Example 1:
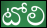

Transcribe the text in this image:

టోలి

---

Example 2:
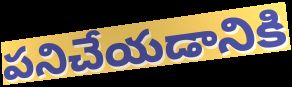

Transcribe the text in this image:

పనిచేయడానికి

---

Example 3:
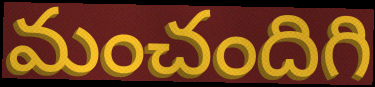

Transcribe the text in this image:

మంచందిగి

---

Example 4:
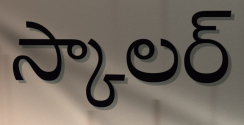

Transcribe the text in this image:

స్కాలర్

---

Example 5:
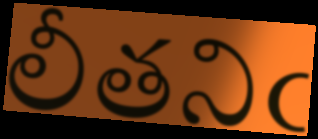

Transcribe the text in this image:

లీతనిఁ